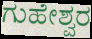
ಗುಹೇಶ್ವರ